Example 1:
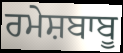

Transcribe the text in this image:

ਰਮੇਸ਼ਬਾਬੂ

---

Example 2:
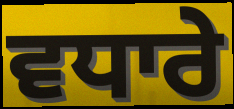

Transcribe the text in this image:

ਵਧਾਰੇ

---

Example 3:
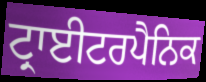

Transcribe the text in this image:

ਟ੍ਰਾਈਟਰਪੈਨਿਕ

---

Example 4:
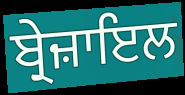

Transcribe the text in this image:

ਬ੍ਰੇਜ਼ਾਇਲ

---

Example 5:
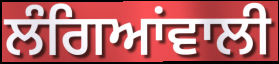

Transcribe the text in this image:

ਲੰਗਿਆਂਵਾਲੀ